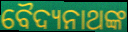
ବୈଦ୍ୟନାଥଙ୍କ